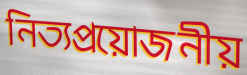
নিত্যপ্রয়োজনীয়